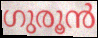
ഗുരൂൻ